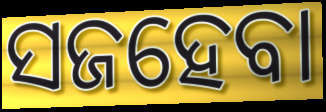
ସଜହେବା